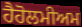
ਹੈਹੋਲਮੀਅਮ